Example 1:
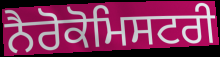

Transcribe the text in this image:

ਨੈਰੋਕੋਮਿਸਟਰੀ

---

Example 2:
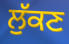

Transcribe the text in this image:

ਲੁੱਕਣ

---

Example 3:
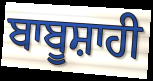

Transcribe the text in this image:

ਬਾਬੂਸ਼ਾਹੀ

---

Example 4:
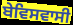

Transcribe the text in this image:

ਬੇਵਿਸਵਾਸੀ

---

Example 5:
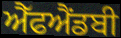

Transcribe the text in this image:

ਐੱਫਐਂਡਬੀ